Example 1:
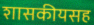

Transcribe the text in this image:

शासकीयसह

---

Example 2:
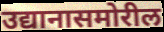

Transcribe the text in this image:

उद्यानासमोरील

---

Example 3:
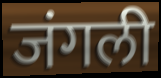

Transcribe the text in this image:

जंगली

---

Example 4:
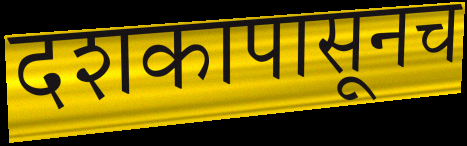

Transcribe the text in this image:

दशकापासूनच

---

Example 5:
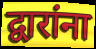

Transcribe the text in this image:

द्वारांना